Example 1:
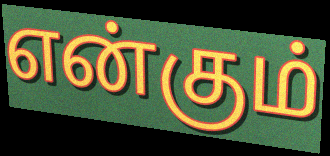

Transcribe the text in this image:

என்கும்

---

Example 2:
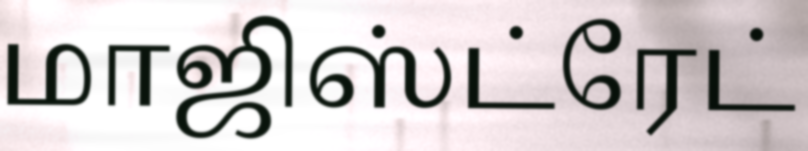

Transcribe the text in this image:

மாஜிஸ்ட்ரேட்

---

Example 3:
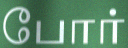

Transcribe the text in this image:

போர்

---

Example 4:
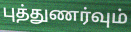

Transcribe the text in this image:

புத்துணர்வும்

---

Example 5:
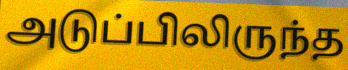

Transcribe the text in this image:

அடுப்பிலிருந்த